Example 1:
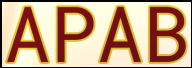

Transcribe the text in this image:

APAB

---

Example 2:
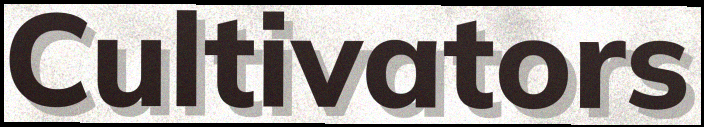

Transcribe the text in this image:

Cultivators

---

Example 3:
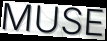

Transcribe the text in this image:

MUSE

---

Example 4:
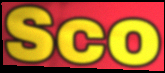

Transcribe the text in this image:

Sco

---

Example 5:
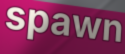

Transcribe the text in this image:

spawn